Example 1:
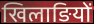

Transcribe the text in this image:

खिलाङियों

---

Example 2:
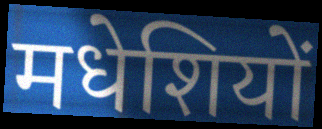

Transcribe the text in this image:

मधेशियों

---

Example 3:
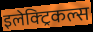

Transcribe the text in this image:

इलेक्ट्रिकल्‍स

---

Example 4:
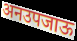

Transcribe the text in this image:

अनउपजाऊ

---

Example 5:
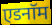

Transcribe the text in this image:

एडनॉम